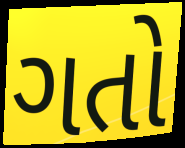
ગતો